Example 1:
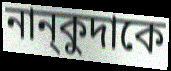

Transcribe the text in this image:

নান্‌কুদাকে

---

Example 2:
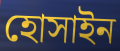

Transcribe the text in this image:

হোসাইন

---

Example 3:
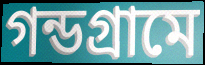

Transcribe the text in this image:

গন্ডগ্রামে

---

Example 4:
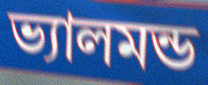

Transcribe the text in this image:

ভ্যালমন্ড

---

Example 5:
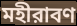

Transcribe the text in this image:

মহীরাবণ